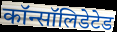
कॉन्सॉलिडेटेड